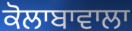
ਕੋਲਾਬਾਵਾਲਾ